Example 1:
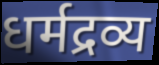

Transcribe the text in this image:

धर्मद्रव्य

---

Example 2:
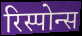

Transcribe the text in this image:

रिस्पोन्स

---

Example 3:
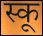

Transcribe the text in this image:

स्कू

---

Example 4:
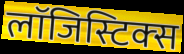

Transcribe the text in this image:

लॉजिस्टिक्‍स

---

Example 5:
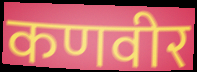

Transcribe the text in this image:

कणवीर